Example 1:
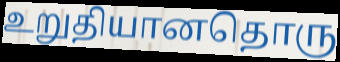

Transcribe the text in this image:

உறுதியானதொரு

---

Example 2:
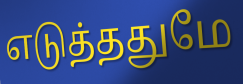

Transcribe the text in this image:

எடுத்ததுமே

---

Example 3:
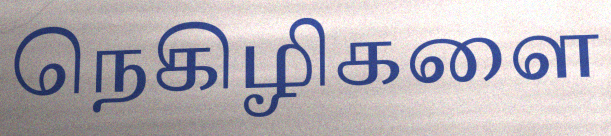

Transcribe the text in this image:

நெகிழிகளை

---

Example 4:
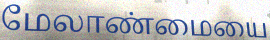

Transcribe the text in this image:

மேலாண்மையை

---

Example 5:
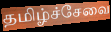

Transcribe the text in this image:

தமிழ்ச்சேவை